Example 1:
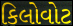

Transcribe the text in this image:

કિલોવોટ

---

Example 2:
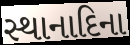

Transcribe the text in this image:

સ્થાનાદિના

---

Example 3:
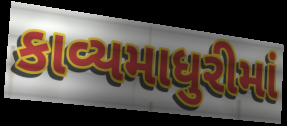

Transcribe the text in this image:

કાવ્યમાધુરીમાં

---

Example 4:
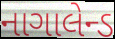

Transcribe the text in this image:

નાગાલેન્ડ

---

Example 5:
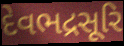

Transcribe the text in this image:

દેવભદ્રસૂરિ